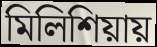
মিলিশিয়ায়